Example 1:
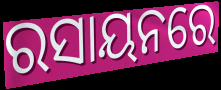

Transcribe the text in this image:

ରସାୟନରେ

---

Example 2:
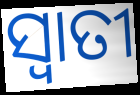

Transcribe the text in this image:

ସ୍ୱାତୀ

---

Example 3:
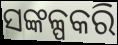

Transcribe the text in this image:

ସଙ୍କଳ୍ପକରି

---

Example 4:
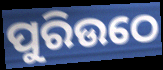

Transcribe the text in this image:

ପୁରିଉଠେ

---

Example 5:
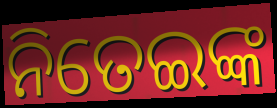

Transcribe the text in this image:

ନିତେଇଙ୍କ